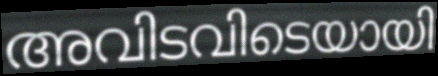
അവിടവിടെയായി